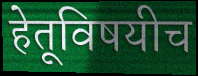
हेतूविषयीच